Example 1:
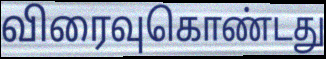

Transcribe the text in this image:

விரைவுகொண்டது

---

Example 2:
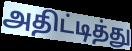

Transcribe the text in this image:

அதிட்டித்து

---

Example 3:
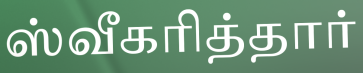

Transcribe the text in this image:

ஸ்வீகரித்தார்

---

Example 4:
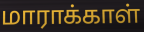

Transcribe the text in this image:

மாராக்காள்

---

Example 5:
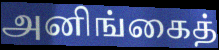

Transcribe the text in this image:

அனிங்கைத்